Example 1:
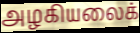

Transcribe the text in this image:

அழகியலைக்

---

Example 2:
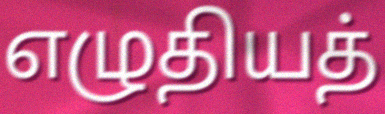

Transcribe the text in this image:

எழுதியத்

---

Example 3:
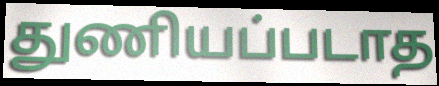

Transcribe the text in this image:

துணியப்படாத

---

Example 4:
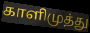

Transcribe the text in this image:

காளிமுத்து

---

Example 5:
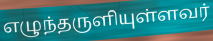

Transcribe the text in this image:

எழுந்தருளியுள்ளவர்